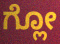
ಗ್ಲೋ